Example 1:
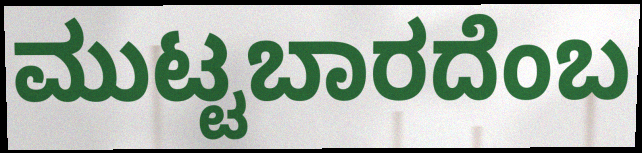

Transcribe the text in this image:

ಮುಟ್ಟಬಾರದೆಂಬ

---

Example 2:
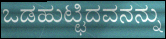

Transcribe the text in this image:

ಒಡಹುಟ್ಟಿದವನನ್ನು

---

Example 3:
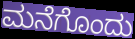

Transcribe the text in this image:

ಮನೆಗೊಂದು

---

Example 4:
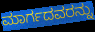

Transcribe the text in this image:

ಮಾರ್ಗದವರನ್ನು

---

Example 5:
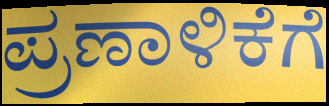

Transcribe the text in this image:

ಪ್ರಣಾಳಿಕೆಗೆ